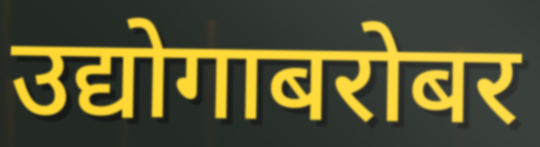
उद्योगाबरोबर